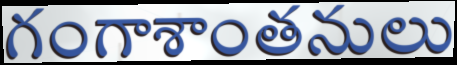
గంగాశాంతనులు